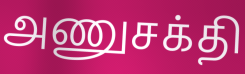
அணுசக்தி